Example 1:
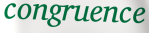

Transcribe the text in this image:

congruence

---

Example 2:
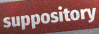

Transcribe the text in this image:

suppository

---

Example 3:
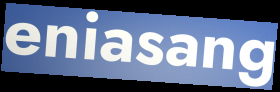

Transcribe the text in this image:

eniasang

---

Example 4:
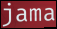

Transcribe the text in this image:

jama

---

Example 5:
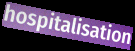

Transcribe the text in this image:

hospitalisation